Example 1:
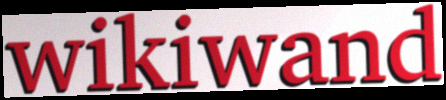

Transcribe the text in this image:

wikiwand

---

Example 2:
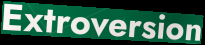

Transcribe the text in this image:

Extroversion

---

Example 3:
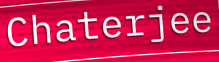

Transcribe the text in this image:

Chaterjee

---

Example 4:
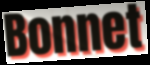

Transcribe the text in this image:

Bonnet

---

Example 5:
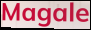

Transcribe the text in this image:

Magale